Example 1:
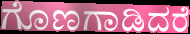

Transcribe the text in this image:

ಗೊಣಗಾಡಿದರೆ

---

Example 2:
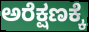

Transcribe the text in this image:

ಅರೆಕ್ಷಣಕ್ಕೆ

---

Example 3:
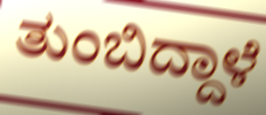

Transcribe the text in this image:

ತುಂಬಿದ್ದಾಳೆ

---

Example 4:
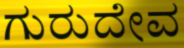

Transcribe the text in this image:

ಗುರುದೇವ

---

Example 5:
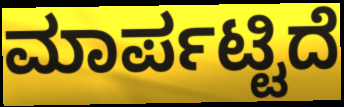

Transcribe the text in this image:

ಮಾರ್ಪಟ್ಟಿದೆ